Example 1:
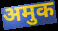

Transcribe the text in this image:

अमुक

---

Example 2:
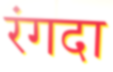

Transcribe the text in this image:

रंगदा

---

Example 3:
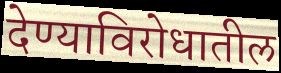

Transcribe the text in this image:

देण्याविरोधातील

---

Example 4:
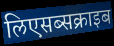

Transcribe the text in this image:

लिएसब्सक्राइब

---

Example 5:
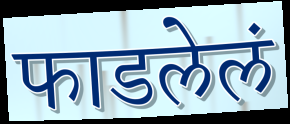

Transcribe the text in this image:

फाडलेलं